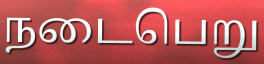
நடைபெறு